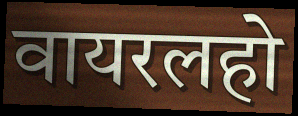
वायरलहो